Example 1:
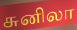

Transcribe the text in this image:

சுனிலா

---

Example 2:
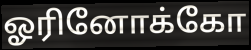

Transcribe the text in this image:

ஓரினோக்கோ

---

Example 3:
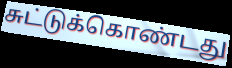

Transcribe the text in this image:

சுட்டுக்கொண்டது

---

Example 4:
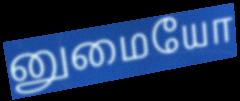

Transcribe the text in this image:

னுமையோ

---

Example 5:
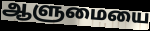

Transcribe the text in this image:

ஆளுமையை